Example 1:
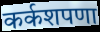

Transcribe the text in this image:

कर्कशपणा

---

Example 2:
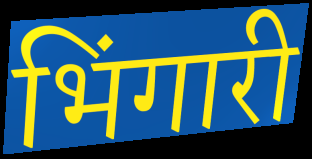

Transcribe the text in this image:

भिंगारी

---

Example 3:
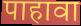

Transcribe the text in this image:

पाहावा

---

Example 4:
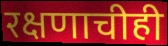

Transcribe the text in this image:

रक्षणाचीही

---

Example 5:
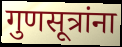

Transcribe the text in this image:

गुणसूत्रांना